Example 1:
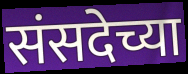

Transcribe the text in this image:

संसदेच्या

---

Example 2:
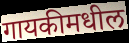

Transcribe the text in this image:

गायकीमधील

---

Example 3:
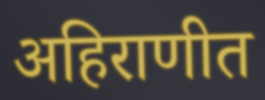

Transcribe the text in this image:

अहिराणीत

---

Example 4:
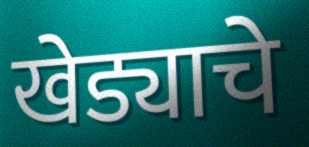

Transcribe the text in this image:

खेड्याचे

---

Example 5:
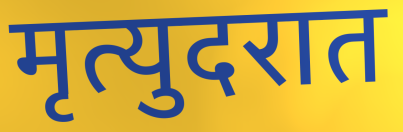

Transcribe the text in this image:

मृत्युदरात